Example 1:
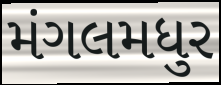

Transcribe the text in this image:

મંગલમધુર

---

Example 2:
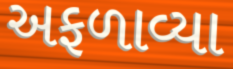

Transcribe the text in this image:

અફળાવ્યા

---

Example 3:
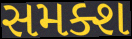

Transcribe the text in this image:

સમક્શ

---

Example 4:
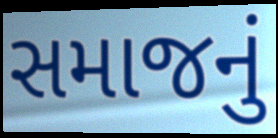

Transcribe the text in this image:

સમાજનું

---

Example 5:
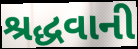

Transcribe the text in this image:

શ્રદ્ધવાની